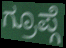
ಗ್ರೂಪ್ಗೆ